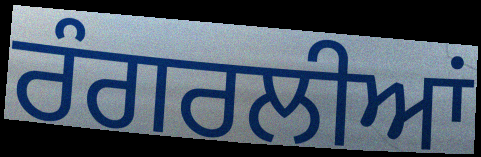
ਰੰਗਰਲੀਆਂ